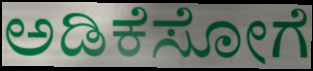
ಅಡಿಕೆಸೋಗೆ